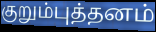
குறும்புத்தனம்